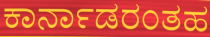
ಕಾರ್ನಾಡರಂತಹ